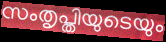
സംതൃപ്തിയുടെയും